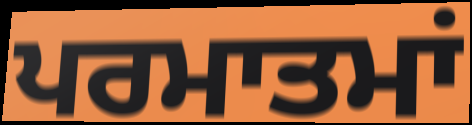
ਪਰਮਾਤਮਾਂ